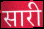
सारी